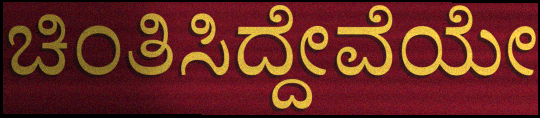
ಚಿಂತಿಸಿದ್ದೇವೆಯೇ